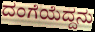
ದಂಗೆಯೆದ್ದನು